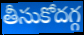
తీసుకోదగ్గ